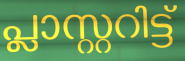
പ്ലാസ്റ്ററിട്ട്